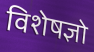
विशेषज्ञो